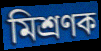
মিশ্ৰণক